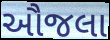
ઔજલા